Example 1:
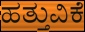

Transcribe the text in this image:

ಹತ್ತುವಿಕೆ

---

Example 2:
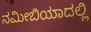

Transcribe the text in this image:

ನಮೀಬಿಯಾದಲ್ಲಿ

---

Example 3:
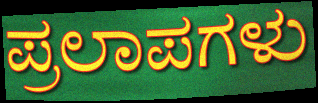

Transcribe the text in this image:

ಪ್ರಲಾಪಗಳು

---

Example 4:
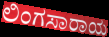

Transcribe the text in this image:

ಲಿಂಗಸಾರಾಯ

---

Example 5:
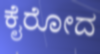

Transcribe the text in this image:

ಕೈರೋದ